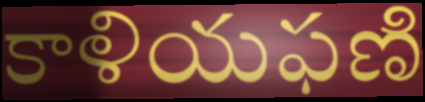
కాళియఫణి